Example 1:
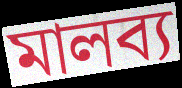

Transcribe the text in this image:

মালব্য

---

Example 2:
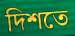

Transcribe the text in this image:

দিশতে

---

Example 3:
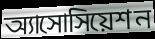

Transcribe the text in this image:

অ্যাসোসিয়েশন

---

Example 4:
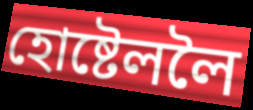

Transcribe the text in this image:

হোষ্টেললৈ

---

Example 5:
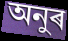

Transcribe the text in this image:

অনুৰ